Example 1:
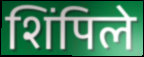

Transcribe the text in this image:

शिंपिले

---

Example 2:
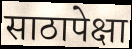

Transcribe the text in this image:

साठापेक्षा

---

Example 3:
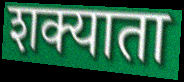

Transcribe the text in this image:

शक्याता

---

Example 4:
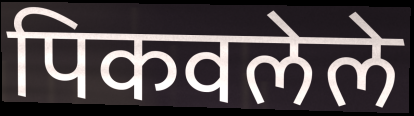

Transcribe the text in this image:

पिकवलेले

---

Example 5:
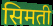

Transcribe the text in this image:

सिमती